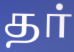
தர்